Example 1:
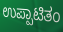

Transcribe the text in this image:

ಉಪ್ಪಾಟಿತಂ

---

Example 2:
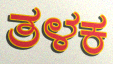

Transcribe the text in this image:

ತಳಕ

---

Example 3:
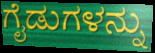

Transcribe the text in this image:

ಗೈಡುಗಳನ್ನು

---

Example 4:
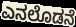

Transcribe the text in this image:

ಎನಲೊಡನೆ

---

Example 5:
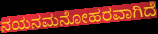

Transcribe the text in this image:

ನಯನಮನೋಹರವಾಗಿದೆ